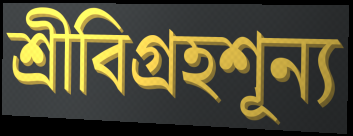
শ্রীবিগ্রহশূন্য